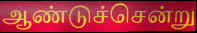
ஆண்டுச்சென்று